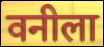
वनीला